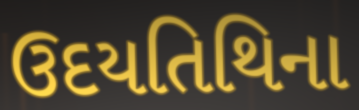
ઉદયતિથિના